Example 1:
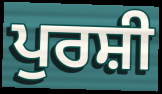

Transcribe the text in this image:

ਪੁਰਸ਼ੀ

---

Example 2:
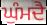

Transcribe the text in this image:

ਘੁੰਮਦੈ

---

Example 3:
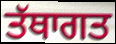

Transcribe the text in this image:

ਤੱਥਾਗਤ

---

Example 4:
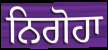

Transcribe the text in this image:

ਨਿਗੋਹਾ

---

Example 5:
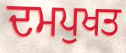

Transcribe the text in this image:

ਦਮਪੁਖਤ